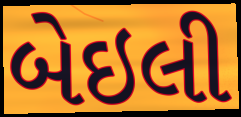
બેઇલી